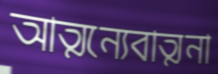
আত্মন্যেবাত্মনা